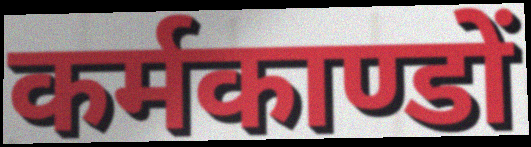
कर्मकाण्डों